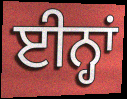
ਈਨ੍ਹਾਂ